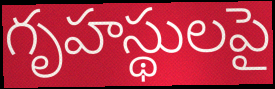
గృహస్థులపై